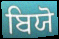
ਬਿਯੋ